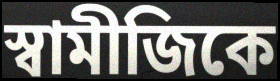
স্বামীজিকে